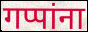
गप्पांना